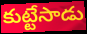
కుట్టేసాడు